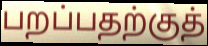
பறப்பதற்குத்